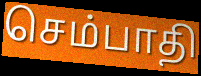
செம்பாதி